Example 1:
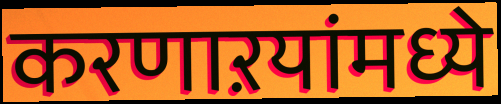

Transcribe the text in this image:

करणाऱयांमध्ये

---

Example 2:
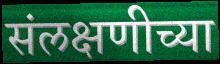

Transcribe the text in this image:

संलक्षणीच्या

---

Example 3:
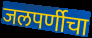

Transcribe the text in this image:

जलपर्णीचा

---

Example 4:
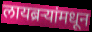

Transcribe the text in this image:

लायब्रऱ्यांमधून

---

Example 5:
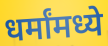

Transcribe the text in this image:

धर्मांमध्ये